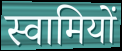
स्वामियों